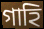
গাহি